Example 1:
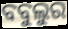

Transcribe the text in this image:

ବବୁଲୁର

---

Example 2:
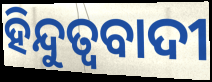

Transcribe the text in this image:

ହିନ୍ଦୁତ୍ୱବାଦୀ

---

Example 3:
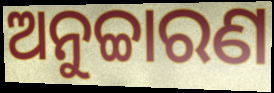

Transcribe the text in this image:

ଅନୁଚ୍ଚାରଣ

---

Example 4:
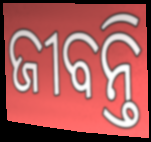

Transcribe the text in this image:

ଜୀବନ୍ତି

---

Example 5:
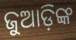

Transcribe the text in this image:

ଜୁଆଡ଼ିଙ୍କ